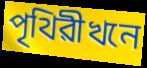
পৃথিৱীখনে